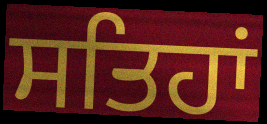
ਸਤਿਹਾਂ